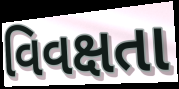
વિવક્ષતા